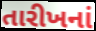
તારીખનાં